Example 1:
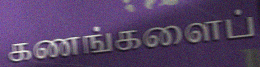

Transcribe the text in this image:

கணங்களைப்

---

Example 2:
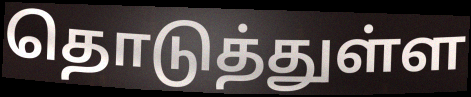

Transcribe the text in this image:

தொடுத்துள்ள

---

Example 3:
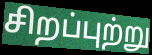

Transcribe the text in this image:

சிறப்புற்று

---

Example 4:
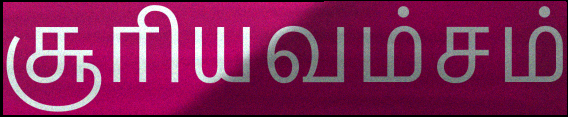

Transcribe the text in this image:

சூரியவம்சம்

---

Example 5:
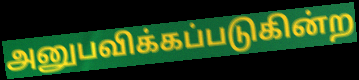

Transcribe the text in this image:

அனுபவிக்கப்படுகின்ற